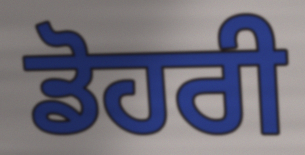
ਡੋਹਰੀ